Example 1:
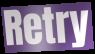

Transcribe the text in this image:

Retry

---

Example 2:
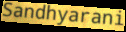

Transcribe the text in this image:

Sandhyarani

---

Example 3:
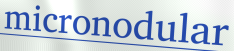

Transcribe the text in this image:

micronodular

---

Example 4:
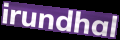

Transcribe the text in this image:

irundhal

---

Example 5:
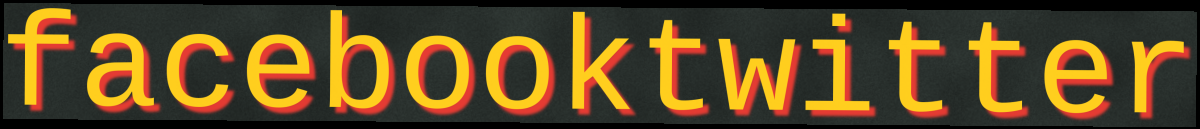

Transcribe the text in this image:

facebooktwitter